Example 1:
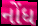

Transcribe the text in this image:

નોંધ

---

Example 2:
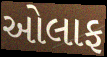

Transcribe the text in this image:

ઓલાફ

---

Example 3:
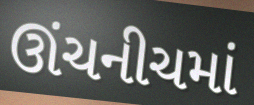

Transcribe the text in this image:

ઊંચનીચમાં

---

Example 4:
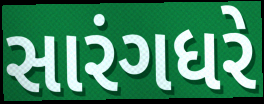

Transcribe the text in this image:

સારંગધરે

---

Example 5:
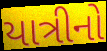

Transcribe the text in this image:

યાત્રીનો